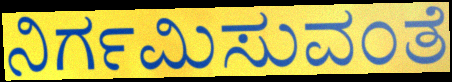
ನಿರ್ಗಮಿಸುವಂತೆ